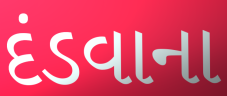
દંડવાના